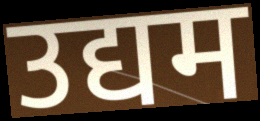
उद्यम